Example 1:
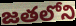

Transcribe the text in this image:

జతలోని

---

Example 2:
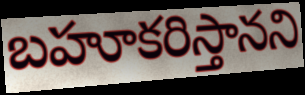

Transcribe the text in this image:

బహూకరిస్తానని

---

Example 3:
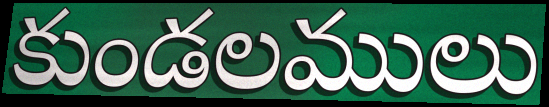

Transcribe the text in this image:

కుండలములు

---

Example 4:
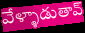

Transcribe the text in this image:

వేళ్ళాడుతావ్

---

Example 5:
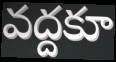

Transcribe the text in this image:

వద్దకూ